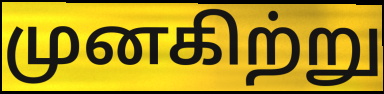
முனகிற்று